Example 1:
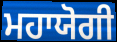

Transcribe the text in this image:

ਮਹਾਯੋਗੀ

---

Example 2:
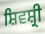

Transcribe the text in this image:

ਸ਼ਿਵਸ਼੍ਰੀ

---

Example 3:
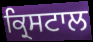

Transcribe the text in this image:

ਕ੍ਰਿਸਟਾਲ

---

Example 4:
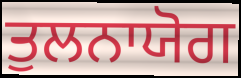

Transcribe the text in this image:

ਤੁਲਨਾਯੋਗ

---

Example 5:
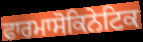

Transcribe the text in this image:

ਫਾਰਮਾਸੋਕਿਨੇਟਿਕ